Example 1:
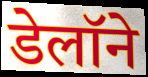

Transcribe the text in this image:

डेलॉने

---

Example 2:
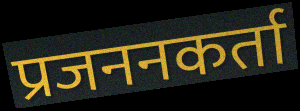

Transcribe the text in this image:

प्रजननकर्ता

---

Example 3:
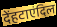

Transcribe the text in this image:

देंहटाएंदिल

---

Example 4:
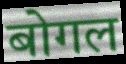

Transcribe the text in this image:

बोगल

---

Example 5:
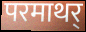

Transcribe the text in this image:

परमाथर्